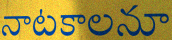
నాటకాలనూ